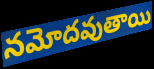
నమోదవుతాయి